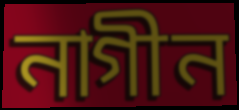
নাগীন